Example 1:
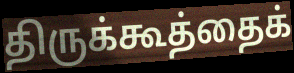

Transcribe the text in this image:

திருக்கூத்தைக்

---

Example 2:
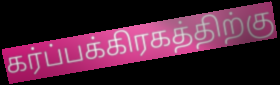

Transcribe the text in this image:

கர்ப்பக்கிரகத்திற்கு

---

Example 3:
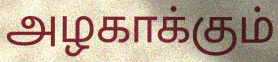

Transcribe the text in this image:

அழகாக்கும்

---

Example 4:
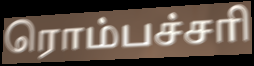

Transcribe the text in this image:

ரொம்பச்சரி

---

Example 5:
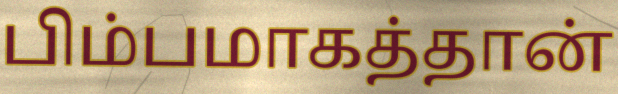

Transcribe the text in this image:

பிம்பமாகத்தான்